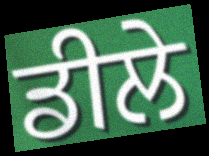
ਡੀਲੇ